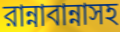
রান্নাবান্নাসহ